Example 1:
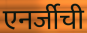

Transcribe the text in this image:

एनर्जीची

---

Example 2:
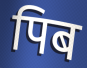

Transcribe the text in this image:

पिब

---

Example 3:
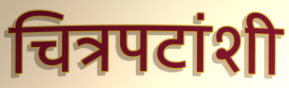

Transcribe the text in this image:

चित्रपटांशी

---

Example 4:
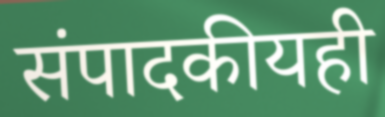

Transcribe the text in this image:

संपादकीयही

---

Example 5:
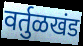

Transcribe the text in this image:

वर्तुळखंड